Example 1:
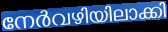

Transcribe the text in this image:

നേർവഴിയിലാക്കി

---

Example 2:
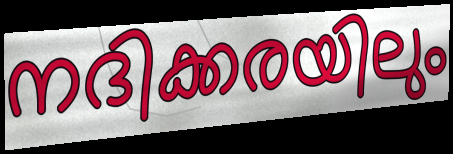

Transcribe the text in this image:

നദിക്കരയിലും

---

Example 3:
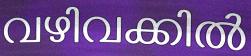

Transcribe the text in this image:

വഴിവക്കിൽ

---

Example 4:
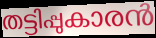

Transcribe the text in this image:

തട്ടിപ്പുകാരൻ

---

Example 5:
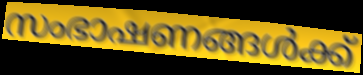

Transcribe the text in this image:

സംഭാഷണങ്ങൾക്ക്